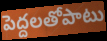
పెద్దలతోపాటు